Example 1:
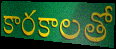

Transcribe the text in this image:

కారకాలతో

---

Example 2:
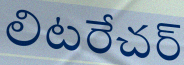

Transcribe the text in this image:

లిటరేచర్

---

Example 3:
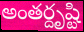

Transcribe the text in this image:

అంతర్దృష్టి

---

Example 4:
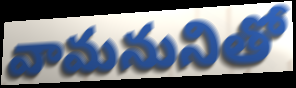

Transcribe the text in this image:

వామనునితో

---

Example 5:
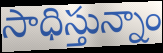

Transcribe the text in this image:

సాధిస్తున్నాం